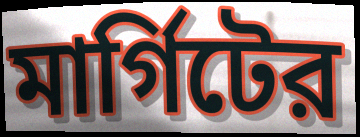
মার্গিটের